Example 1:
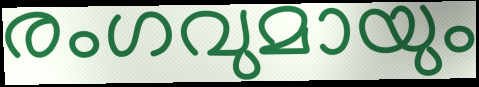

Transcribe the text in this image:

രംഗവുമായും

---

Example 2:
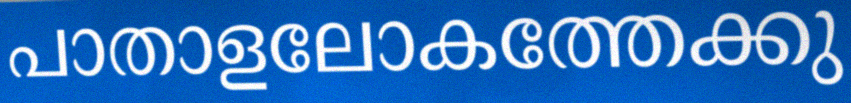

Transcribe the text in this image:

പാതാളലോകത്തേക്കു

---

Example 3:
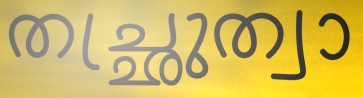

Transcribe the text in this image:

തച്ഛ്രുത്വാ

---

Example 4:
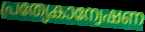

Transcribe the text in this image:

പ്രത്യേകാന്വേഷണ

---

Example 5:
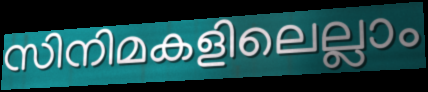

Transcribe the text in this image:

സിനിമകളിലെല്ലാം